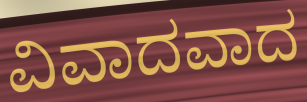
ವಿವಾದವಾದ